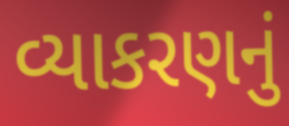
વ્યાકરણનું